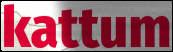
kattum